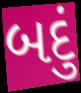
બદું